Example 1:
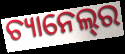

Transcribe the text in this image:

ଚ୍ୟାନେଲ୍‌ର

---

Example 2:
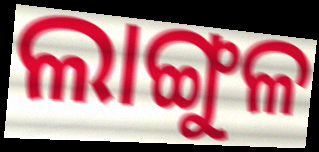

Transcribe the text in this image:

ଲାଙ୍ଗୁଳ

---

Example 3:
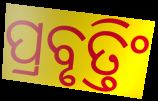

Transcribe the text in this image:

ପ୍ରବୃତ୍ତିଂ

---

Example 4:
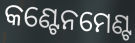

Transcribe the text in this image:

କଣ୍ଟେନମେଣ୍ଟ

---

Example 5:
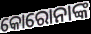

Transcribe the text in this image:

କୋରୋନାଙ୍କ